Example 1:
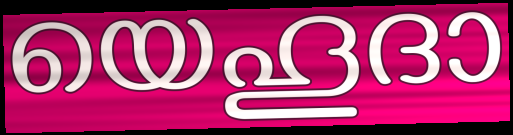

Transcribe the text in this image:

യെഹൂദാ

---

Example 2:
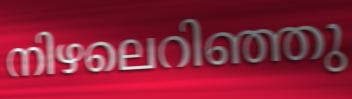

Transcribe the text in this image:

നിഴലെറിഞ്ഞു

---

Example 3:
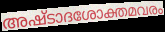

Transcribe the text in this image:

അഷ്ടാദശോക്തമവരം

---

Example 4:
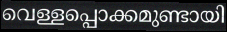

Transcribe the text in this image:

വെള്ളപ്പൊക്കമുണ്ടായി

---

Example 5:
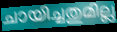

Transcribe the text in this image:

ചായിച്ചതുമില്ല